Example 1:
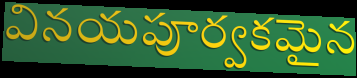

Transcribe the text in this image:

వినయపూర్వకమైన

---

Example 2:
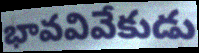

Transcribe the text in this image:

భావవివేకుడు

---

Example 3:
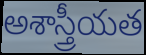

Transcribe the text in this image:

అశాస్త్రీయత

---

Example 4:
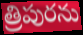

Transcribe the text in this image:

త్రిపురను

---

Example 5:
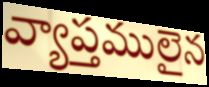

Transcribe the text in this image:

వ్యాప్తములైన